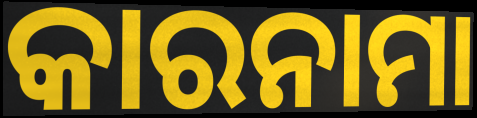
କାରନାମା